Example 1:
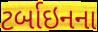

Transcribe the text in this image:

ટર્બાઇનના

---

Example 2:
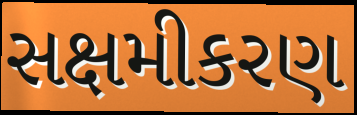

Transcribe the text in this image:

સક્ષમીકરણ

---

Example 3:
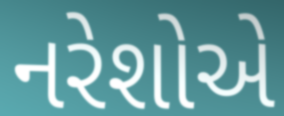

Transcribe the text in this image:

નરેશોએ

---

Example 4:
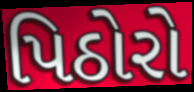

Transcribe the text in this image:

પિઠોરો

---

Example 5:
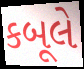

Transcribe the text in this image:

કબૂલે